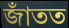
জাঁতত